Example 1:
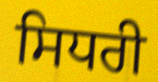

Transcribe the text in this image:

ਸਿਧਰੀ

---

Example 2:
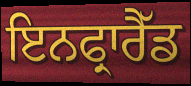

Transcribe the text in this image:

ਇਨਫ੍ਰਾਰੈੱਡ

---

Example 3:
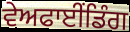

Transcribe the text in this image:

ਵੇਅਫਾਈਂਡਿੰਗ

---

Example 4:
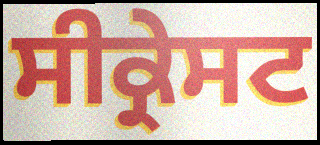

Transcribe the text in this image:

ਸੀਕ੍ਰੇਸਟ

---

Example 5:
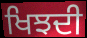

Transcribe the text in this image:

ਖਿਝਦੀ